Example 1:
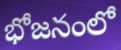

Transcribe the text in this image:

భోజనంలో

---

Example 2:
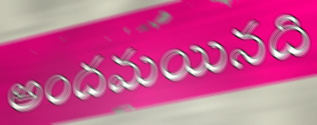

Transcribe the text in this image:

అందమయినది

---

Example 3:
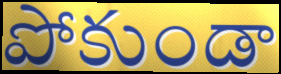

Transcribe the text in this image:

పోకుండా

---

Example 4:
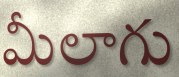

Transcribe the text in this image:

మీలాగు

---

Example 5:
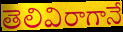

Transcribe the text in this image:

తెలివిరాగానే